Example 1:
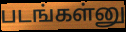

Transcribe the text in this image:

படங்கள்னு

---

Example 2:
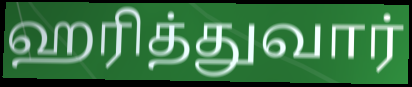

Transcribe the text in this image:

ஹரித்துவார்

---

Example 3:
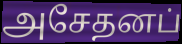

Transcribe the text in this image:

அசேதனப்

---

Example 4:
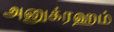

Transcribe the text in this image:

அனுக்ரஹம்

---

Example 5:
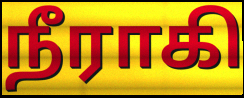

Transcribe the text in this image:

நீராகி